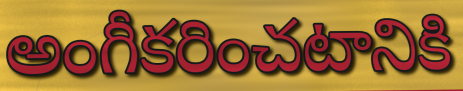
అంగీకరించటానికి